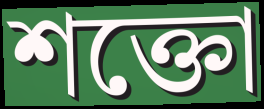
শক্তো